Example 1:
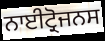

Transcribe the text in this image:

ਨਾਈਟ੍ਰੋਜਨਸ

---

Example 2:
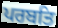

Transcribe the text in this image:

ਪਰਬਤਿ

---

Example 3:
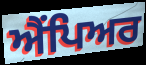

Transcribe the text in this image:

ਐਂਪਿਅਰ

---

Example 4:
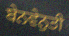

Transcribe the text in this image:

ਬੇਨਵੇਨੁਤੀ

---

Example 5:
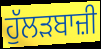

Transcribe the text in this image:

ਹੁੱਲੜਬਾਜ਼ੀ